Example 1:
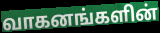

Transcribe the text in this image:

வாகனங்களின்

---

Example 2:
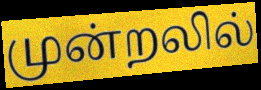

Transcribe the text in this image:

முன்றலில்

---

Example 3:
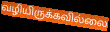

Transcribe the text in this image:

வழியிருக்கவில்லை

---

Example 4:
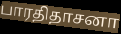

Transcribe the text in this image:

பாரதிதாசனா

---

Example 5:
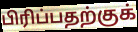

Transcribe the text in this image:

பிரிப்பதற்குக்